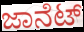
ಜಾನೆಟ್